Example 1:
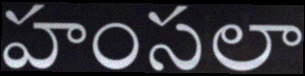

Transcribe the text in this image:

హంసలా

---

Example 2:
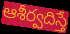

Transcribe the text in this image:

ఆశీర్వదిస్తే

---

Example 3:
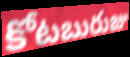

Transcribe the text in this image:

కోటబురుజు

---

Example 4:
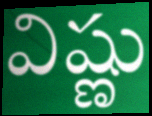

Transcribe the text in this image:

విష్ణు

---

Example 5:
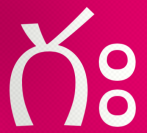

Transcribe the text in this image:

గః